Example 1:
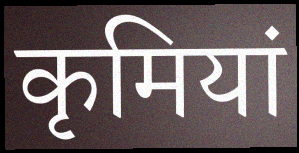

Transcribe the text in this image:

कृमियां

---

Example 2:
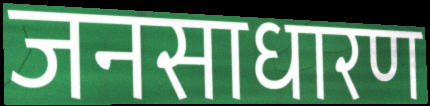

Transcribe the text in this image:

जनसाधारण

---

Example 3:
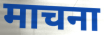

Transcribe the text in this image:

माचना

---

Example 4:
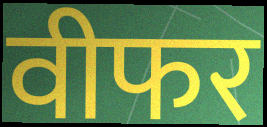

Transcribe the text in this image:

वीफर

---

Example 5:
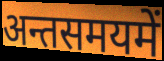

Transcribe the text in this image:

अन्तसमयमें